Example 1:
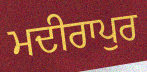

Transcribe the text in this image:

ਮਦੀਰਾਪੁਰ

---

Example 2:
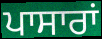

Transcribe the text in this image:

ਪਾਸਾਰਾਂ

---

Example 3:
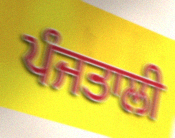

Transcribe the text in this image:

ਪੰਜਤਾਲੀ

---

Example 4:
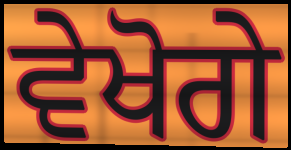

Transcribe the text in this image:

ਵੇਖੋਗੇ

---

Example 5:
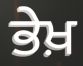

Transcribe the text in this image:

ਭੇਖ਼